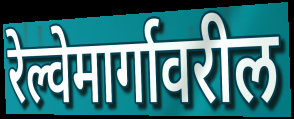
रेल्वेमार्गावरील